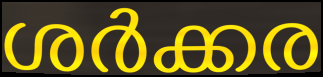
ശർക്കര